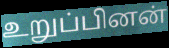
உறுப்பினன்